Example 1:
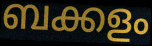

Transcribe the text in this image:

ബക്കളം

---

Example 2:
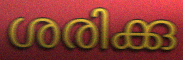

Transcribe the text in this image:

ശരിക്കു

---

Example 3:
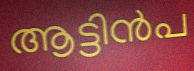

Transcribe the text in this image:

ആട്ടിൻപ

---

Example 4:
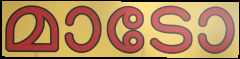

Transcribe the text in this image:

മാടോ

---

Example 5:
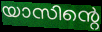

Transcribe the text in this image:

യാസിന്റെ